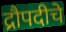
द्रौपदीचे